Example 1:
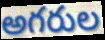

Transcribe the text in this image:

అగరుల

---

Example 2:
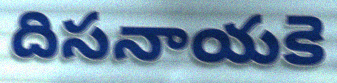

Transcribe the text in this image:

దిసనాయకె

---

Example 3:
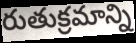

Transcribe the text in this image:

రుతుక్రమాన్ని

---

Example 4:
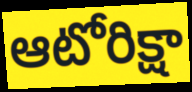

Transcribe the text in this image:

ఆటోరిక్షా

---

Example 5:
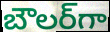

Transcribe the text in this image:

బౌలర్‌గా